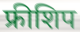
फ्रीशिप